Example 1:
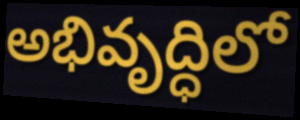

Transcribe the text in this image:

అభివృద్ధిలో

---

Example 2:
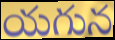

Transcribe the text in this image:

యగున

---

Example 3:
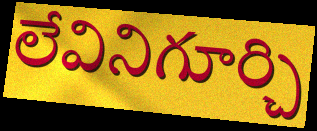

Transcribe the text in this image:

లేవినిగూర్చి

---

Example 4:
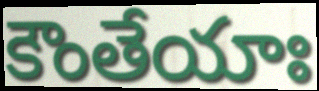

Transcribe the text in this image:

కౌంతేయాః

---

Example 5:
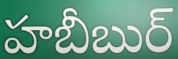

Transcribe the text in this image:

హబీబుర్